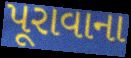
પૂરાવાના